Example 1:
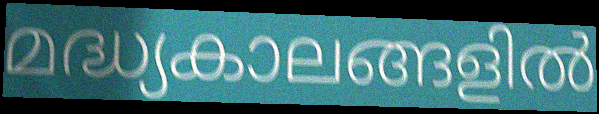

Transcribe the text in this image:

മദ്ധ്യകാലങ്ങളിൽ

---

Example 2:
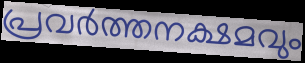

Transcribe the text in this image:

പ്രവർത്തനക്ഷമവും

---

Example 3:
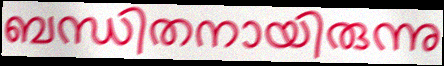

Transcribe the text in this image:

ബന്ധിതനായിരുന്നു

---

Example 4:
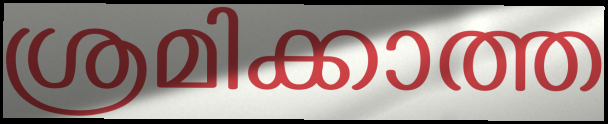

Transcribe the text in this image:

ശ്രമിക്കാത്ത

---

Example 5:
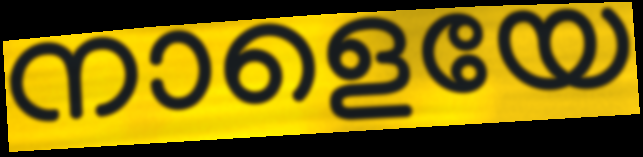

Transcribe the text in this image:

നാളെയേ